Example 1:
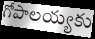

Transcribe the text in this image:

గోపాలయ్యకు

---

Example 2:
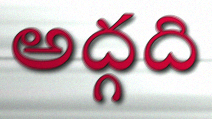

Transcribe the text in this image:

అద్గది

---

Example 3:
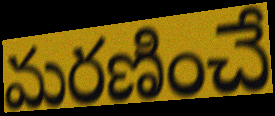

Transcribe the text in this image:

మరణించే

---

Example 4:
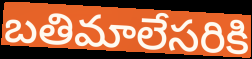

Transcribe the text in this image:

బతిమాలేసరికి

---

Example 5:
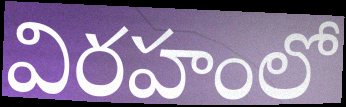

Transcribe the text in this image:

విరహంలో